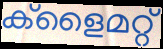
ക്ളൈമറ്റ്